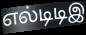
எல்டிடிஇ